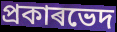
প্ৰকাৰভেদ